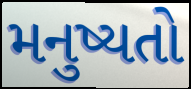
મનુષ્યતો